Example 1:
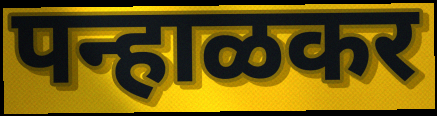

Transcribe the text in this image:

पन्हाळकर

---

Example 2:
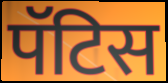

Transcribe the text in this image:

पॅटिस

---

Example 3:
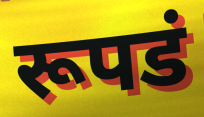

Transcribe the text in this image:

रूपडं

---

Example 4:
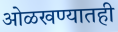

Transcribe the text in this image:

ओळखण्यातही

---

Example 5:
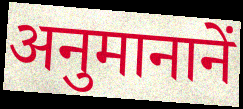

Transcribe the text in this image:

अनुमानानें